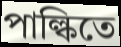
পাল্কিতে